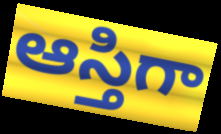
ఆస్తిగా